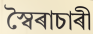
স্বৈৰাচাৰী